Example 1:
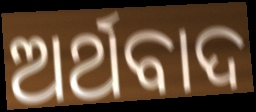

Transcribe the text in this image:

ଅର୍ଥବାଦ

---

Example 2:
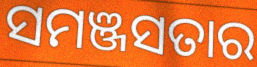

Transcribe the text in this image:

ସମଞ୍ଜସତାର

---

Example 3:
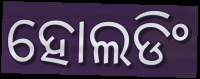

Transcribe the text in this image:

ହୋଲଡିଂ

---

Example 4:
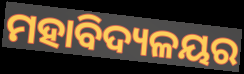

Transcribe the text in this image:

ମହାବିଦ୍ୟଳୟର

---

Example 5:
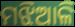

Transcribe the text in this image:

ମଝିଆଳି